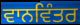
ਵਾਨਵਿੰਤਰ